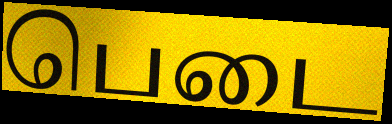
பெடை